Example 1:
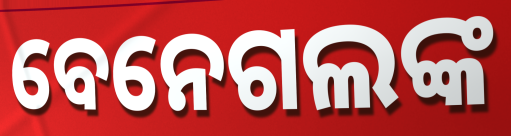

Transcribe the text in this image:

ବେନେଗଲଙ୍କ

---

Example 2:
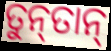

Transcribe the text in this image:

ତୁନ୍‍ତାନ୍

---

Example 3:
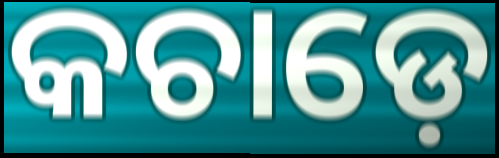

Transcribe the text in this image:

କଚାଡ଼େ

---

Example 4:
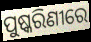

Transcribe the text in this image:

ପୁଷ୍କରିଣୀରେ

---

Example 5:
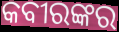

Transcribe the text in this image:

କବୀରଙ୍କର